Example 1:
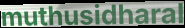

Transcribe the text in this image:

muthusidharal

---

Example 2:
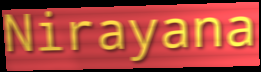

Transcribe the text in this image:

Nirayana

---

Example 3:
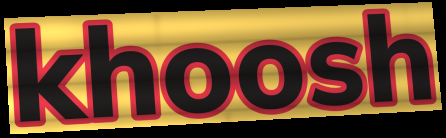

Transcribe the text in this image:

khoosh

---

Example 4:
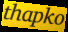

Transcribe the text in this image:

thapko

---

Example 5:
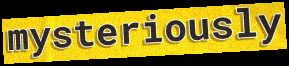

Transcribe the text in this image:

mysteriously